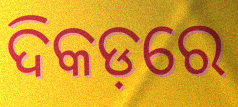
ଦିକଡ଼ରେ